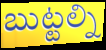
బుట్టల్ని